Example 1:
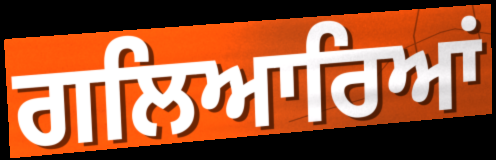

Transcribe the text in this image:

ਗਲਿਆਰਿਆਂ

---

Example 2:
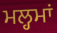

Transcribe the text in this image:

ਮਲ੍ਹਮਾਂ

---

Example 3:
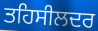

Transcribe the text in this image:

ਤਹਿਸੀਲਦਰ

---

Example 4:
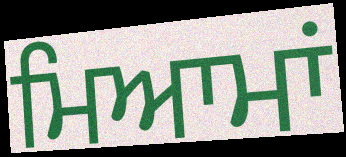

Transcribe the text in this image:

ਮਿਆਮਾਂ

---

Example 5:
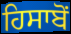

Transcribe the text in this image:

ਹਿਸਾਬੋਂ